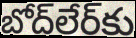
బోద్‌లేర్‌కు